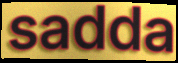
sadda